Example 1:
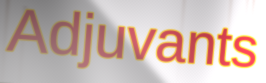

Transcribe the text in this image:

Adjuvants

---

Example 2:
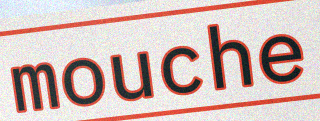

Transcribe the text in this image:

mouche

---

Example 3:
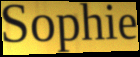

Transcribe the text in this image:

Sophie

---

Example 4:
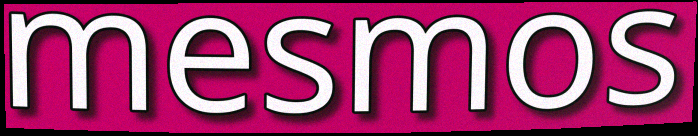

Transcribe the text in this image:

mesmos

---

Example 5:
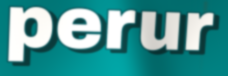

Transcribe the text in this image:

perur